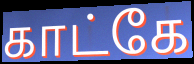
காட்கே